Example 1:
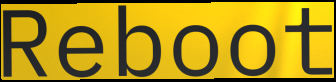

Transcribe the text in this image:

Reboot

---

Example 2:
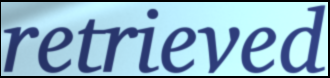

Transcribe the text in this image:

retrieved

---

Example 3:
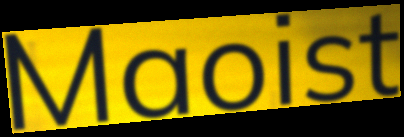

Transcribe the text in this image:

Maoist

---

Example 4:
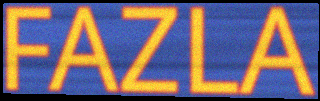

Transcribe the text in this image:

FAZLA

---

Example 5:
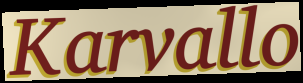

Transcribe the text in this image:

Karvallo